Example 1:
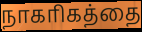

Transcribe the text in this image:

நாகரிகத்தை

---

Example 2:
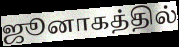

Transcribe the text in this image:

ஜூனாகத்தில்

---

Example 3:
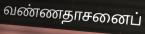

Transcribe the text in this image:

வண்ணதாசனைப்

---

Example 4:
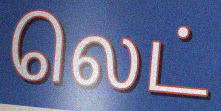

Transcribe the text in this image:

லெட்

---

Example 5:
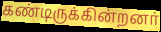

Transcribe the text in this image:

கண்டிருக்கின்றனர்